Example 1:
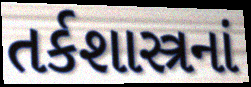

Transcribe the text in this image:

તર્કશાસ્ત્રનાં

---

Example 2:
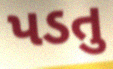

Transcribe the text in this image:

પડતુ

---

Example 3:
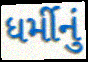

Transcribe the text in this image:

ધર્મીનું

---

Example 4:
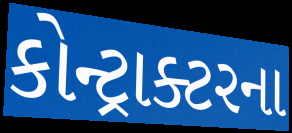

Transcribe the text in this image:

કોન્ટ્રાક્ટરના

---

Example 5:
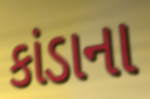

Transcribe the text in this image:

કાંડાના